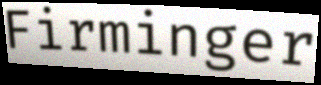
Firminger